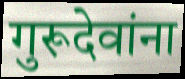
गुरूदेवांना